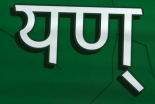
यण्